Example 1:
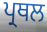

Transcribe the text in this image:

ਪ੍ਰਥਲ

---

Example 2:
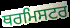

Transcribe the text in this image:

ਥਰਮਿਸਟਰ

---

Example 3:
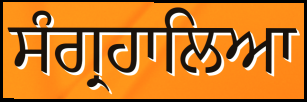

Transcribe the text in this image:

ਸੰਗ੍ਰਹਾਲਿਆ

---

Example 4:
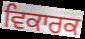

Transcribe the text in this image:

ਵਿਕਾਰਕ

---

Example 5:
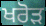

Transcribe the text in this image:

ਖਰੋੜ